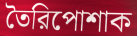
তৈরিপোশাক